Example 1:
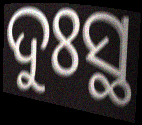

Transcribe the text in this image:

ଦୁଃସ୍ଥ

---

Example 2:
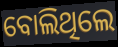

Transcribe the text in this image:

ବୋଲିଥିଲେ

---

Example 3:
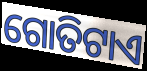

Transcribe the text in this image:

ଗୋତିଟାଏ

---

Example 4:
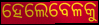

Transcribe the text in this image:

ହେଲେବେଳକୁ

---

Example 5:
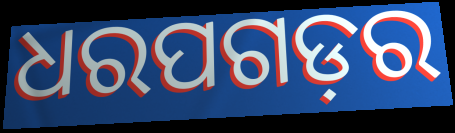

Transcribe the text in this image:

ଧରପଗଡ଼ର